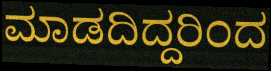
ಮಾಡದಿದ್ದರಿಂದ